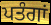
ਪਤੰਗਾਂ